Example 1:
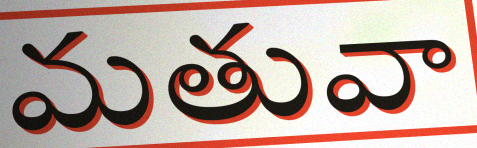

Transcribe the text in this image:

మతువా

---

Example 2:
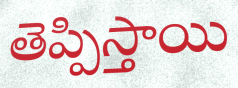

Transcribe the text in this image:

తెప్పిస్తాయి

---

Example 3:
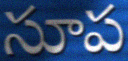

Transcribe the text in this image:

సూప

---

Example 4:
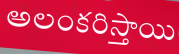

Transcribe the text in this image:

అలంకరిస్తాయి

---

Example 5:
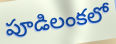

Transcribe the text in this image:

పూడిలంకలో